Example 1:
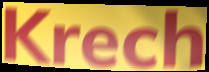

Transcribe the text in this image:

Krech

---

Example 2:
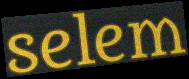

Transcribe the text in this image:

selem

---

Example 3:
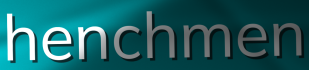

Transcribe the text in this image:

henchmen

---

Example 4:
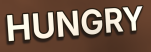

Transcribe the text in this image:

HUNGRY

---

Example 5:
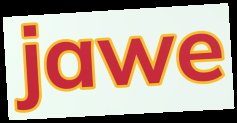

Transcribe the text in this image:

jawe